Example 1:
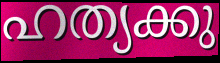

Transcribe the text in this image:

ഹത്യക്കു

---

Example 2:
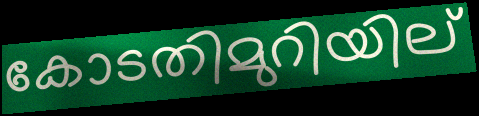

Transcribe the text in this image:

കോടതിമുറിയില്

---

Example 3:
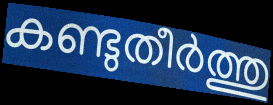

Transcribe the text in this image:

കണ്ടുതീർത്തു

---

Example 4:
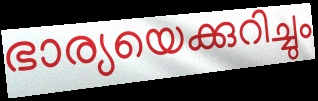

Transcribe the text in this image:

ഭാര്യയെക്കുറിച്ചും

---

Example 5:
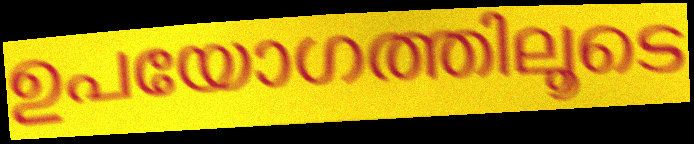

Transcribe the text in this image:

ഉപയോഗത്തിലൂടെ